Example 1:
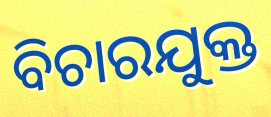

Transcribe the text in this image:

ବିଚାରଯୁକ୍ତ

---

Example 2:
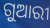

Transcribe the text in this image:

ଗୁଆରୀ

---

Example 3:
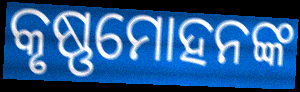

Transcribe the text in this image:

କୃଷ୍ଣମୋହନଙ୍କ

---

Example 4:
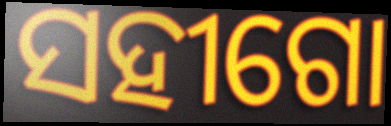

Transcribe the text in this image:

ସହୀଗୋ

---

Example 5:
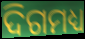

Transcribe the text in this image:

ଦିଗମଧ୍ୟ